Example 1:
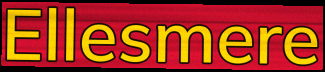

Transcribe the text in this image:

Ellesmere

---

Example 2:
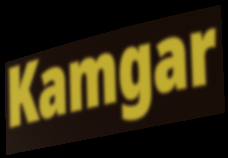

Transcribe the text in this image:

Kamgar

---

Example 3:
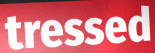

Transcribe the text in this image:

tressed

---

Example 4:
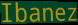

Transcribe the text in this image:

Ibanez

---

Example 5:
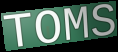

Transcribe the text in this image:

TOMS